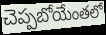
చెప్పబోయేంతలో